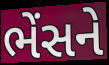
ભેંસને